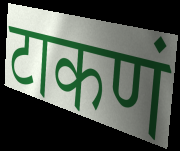
टाकणं